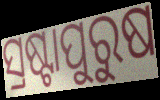
ସ୍ରଷ୍ଟାପୁରୁଷ